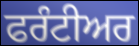
ਫਰੰਟੀਅਰ